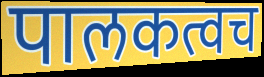
पालकत्वच